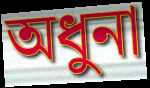
অধুনা